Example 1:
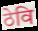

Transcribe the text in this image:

ठेवि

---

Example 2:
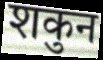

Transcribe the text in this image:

शकुन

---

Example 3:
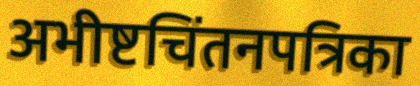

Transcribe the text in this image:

अभीष्टचिंतनपत्रिका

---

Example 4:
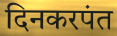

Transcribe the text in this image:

दिनकरपंत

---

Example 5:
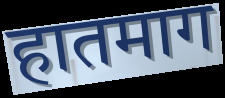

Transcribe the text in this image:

हातमाग